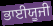
ਭਾਈਯੂਜੀ